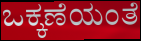
ಒಕ್ಕಣೆಯಂತೆ